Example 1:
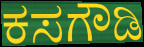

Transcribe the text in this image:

ಕಸಗೌಡಿ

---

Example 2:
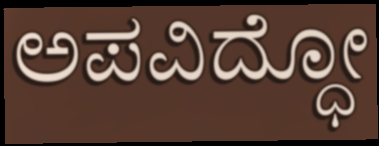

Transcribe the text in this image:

ಅಪವಿದ್ಧೋ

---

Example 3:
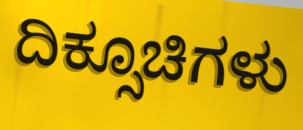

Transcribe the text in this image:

ದಿಕ್ಸೂಚಿಗಳು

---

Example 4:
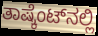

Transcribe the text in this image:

ತಾಷ್ಕೆಂಟ್‌ನಲ್ಲಿ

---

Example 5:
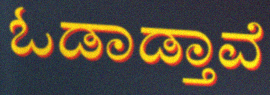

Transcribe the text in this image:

ಓಡಾಡ್ತಾವೆ